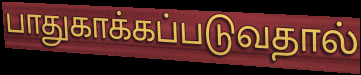
பாதுகாக்கப்படுவதால்